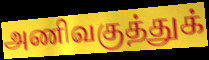
அணிவகுத்துக்